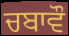
ਚਬਾਵੌ